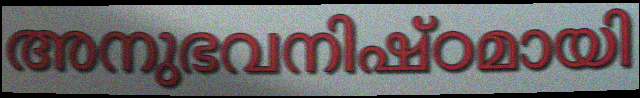
അനുഭവനിഷ്ഠമായി